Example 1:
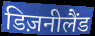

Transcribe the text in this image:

डिज़नीलैंड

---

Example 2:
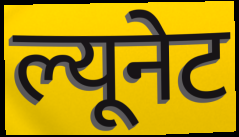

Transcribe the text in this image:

ल्यूनेट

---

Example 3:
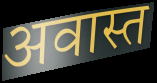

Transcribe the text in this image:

अवास्त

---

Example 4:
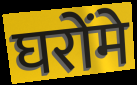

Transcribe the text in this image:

घरोंमे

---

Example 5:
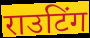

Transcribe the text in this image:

राउटिंग